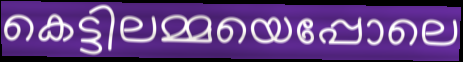
കെട്ടിലമ്മയെപ്പോലെ